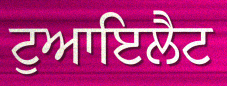
ਟੁਆਇਲੈਟ